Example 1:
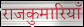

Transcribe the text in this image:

राजकुमारियाँ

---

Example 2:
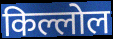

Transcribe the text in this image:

किल्लोल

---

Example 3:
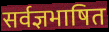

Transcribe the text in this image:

सर्वज्ञभाषित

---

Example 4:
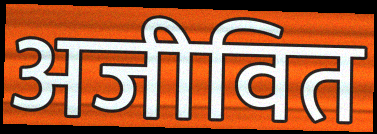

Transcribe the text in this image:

अजीवित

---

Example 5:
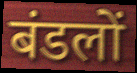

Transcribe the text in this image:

बंडलों